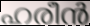
ഹരീൻ